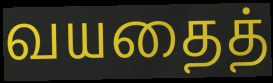
வயதைத்